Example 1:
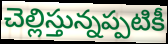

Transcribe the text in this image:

చెల్లిస్తున్నప్పటికీ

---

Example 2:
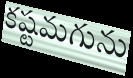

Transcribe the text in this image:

కష్టమగును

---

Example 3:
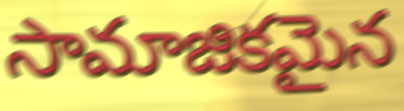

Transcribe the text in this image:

సామాజికమైన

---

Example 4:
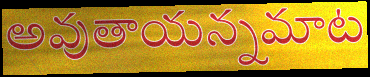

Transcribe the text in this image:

అవుతాయన్నమాట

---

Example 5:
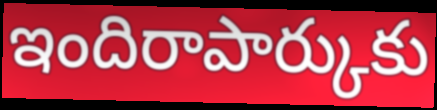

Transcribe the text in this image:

ఇందిరాపార్కుకు